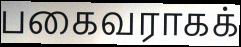
பகைவராகக்